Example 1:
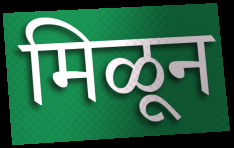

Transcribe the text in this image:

मिळून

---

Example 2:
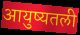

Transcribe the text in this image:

आयुष्यतली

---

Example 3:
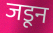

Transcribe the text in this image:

जडून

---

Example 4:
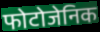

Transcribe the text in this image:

फोटोजेनिक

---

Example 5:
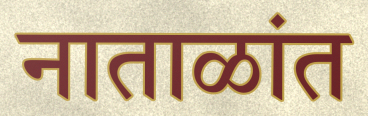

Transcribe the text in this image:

नाताळांत